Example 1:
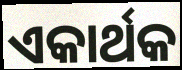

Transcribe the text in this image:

ଏକାର୍ଥକ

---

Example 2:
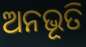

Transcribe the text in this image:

ଅନଭୂତି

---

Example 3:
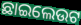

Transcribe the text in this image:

ଛାଇଲେଉଟ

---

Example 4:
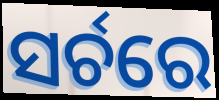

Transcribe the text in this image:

ସର୍ଚରେ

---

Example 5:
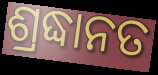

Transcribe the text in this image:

ଶ୍ରଦ୍ଧାନତ